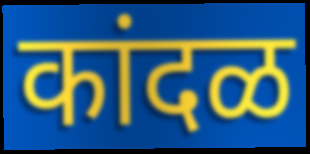
कांदळ